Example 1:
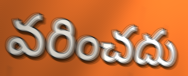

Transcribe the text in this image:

వరించదు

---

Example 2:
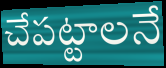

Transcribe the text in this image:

చేపట్టాలనే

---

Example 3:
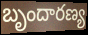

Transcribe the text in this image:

బృందారణ్య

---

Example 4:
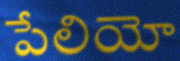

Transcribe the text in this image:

పేలియో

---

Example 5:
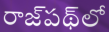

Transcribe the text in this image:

రాజ్‌పథ్‌లో